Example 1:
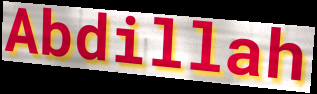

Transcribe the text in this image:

Abdillah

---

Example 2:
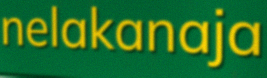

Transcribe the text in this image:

nelakanaja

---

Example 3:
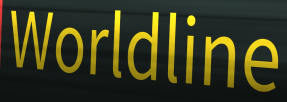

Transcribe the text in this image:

Worldline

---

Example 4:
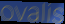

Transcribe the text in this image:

ovalis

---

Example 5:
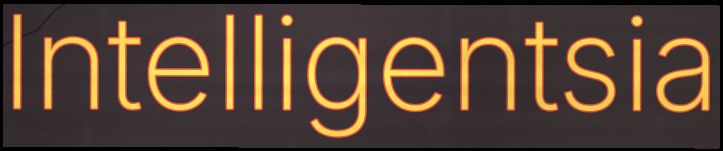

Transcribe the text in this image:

Intelligentsia